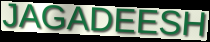
JAGADEESH